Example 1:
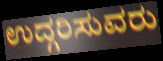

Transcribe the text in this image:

ಉದ್ಗರಿಸುವರು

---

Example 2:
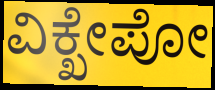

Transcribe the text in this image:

ವಿಕ್ಖೇಪೋ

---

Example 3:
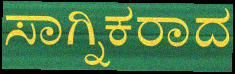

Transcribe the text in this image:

ಸಾಗ್ನಿಕರಾದ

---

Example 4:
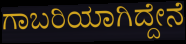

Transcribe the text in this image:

ಗಾಬರಿಯಾಗಿದ್ದೇನೆ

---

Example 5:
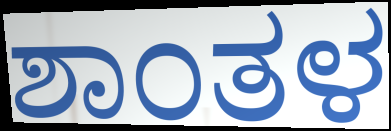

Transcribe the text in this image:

ಶಾಂತಳ